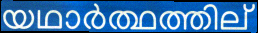
യഥാർത്ഥത്തില്